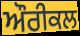
ਔਰੀਕਲ